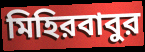
মিহিরবাবুর